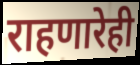
राहणारेही